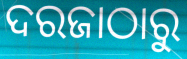
ଦରଜାଠାରୁ